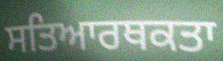
ਸਤਿਆਰਥਕਤਾ